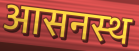
आसनस्थ